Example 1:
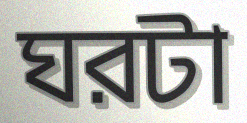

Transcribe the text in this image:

ঘরটা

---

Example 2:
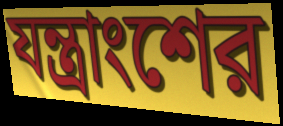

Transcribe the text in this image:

যন্ত্রাংশের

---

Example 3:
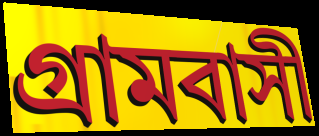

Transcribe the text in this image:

গ্রামবাসী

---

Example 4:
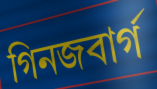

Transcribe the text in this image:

গিনজবার্গ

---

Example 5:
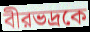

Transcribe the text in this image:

বীরভদ্রকে